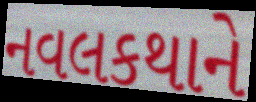
નવલકથાને